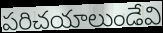
పరిచయాలుండేవి